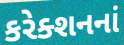
કરેક્શનનાં